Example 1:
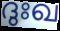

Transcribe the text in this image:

ദുഃഖ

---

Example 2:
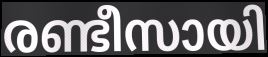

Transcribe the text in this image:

രണ്ടീസായി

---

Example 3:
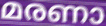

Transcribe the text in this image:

മരണാ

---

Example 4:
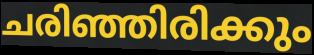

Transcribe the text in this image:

ചരിഞ്ഞിരിക്കും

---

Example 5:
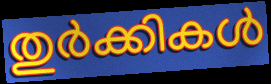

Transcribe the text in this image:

തുർക്കികൾ